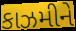
કાઝમીને